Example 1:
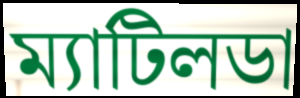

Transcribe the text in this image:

ম্যাটিলডা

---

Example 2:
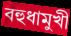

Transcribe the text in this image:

বহুধামুখী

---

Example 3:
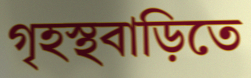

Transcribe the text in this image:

গৃহস্থবাড়িতে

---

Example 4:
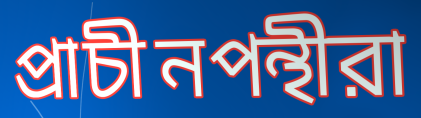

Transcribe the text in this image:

প্রাচীনপন্থীরা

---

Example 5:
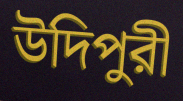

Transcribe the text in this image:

উদিপুরী